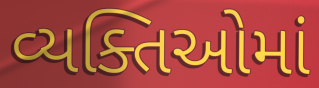
વ્યક્તિઓમાં